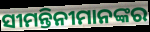
ସୀମନ୍ତିନୀମାନଙ୍କର